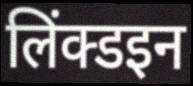
लिंक्डइन